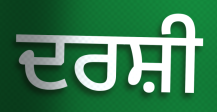
ਦਰਸ਼ੀ